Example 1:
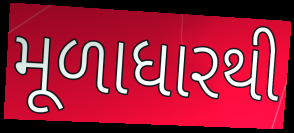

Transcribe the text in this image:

મૂળાધારથી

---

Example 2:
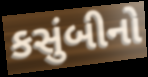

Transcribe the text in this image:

કસુંબીનો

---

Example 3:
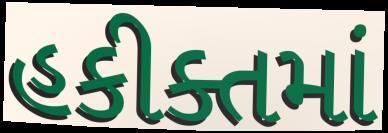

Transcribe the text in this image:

હકીક્તમાં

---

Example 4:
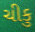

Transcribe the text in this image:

ચીકુ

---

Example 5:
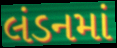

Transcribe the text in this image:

લંડનમાં